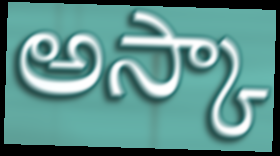
అస్కా